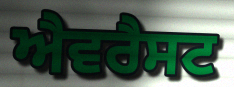
ਐਵਰੈਸਟ